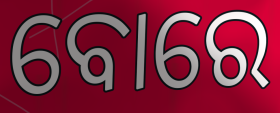
ବୋରେ